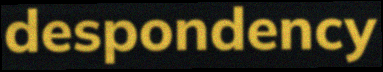
despondency